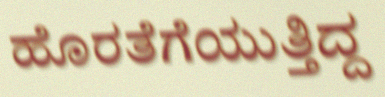
ಹೊರತೆಗೆಯುತ್ತಿದ್ದ